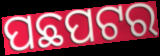
ପଛପଟର